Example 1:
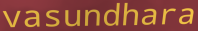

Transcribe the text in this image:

vasundhara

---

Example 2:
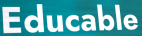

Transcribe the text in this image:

Educable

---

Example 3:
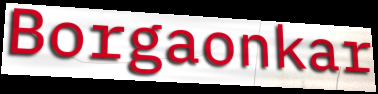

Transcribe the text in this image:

Borgaonkar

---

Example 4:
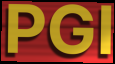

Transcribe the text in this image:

PGI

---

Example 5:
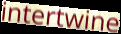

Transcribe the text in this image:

intertwine